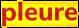
pleure